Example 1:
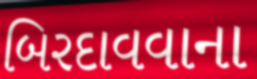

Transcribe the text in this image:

બિરદાવવાના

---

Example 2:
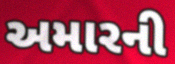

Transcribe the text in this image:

અમારની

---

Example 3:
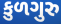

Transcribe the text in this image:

કુળગુરુ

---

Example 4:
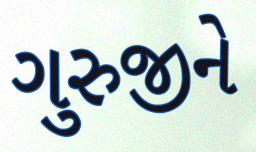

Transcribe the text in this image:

ગુરુજીને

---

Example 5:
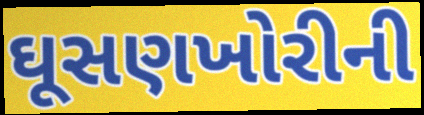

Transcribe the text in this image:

ઘૂસણખોરીની